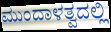
ಮುಂದಾಳತ್ವದಲ್ಲಿ